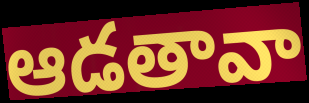
ఆడతావా